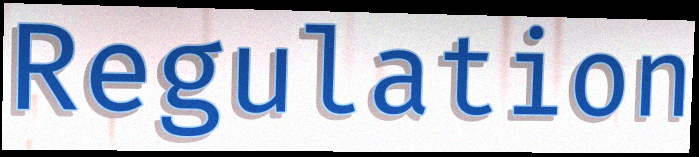
Regulation